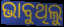
ଭାବୁଥିଲୁ